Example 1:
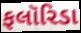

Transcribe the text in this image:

ફલૉરિડા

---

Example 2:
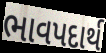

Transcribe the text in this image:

ભાવપદાર્થ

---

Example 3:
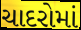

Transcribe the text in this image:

ચાદરોમાં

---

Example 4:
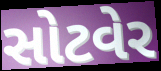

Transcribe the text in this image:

સોટવેર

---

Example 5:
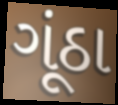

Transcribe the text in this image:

ગૂંઠા